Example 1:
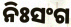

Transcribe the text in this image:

ନିଃସଂଗ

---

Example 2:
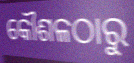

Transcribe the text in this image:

କୌଶଳଠାରୁ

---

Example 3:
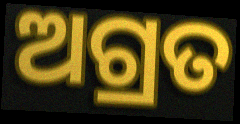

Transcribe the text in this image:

ଅଗ୍ରତ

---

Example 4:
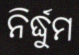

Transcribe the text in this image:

ନିର୍ଦ୍ଧୁମ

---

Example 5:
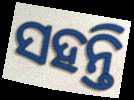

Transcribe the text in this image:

ସହନ୍ତି